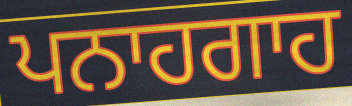
ਪਨਾਹਗਾਹ